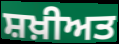
ਸ਼ਖ਼ੀਅਤ